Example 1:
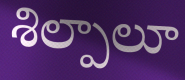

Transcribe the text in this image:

శిల్పాలూ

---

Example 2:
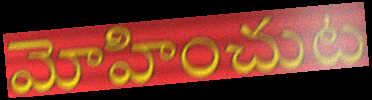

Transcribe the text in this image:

మోహించుట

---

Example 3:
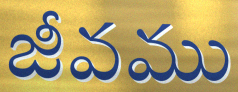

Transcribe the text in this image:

జీవము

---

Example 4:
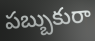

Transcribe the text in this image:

పబ్బుకురా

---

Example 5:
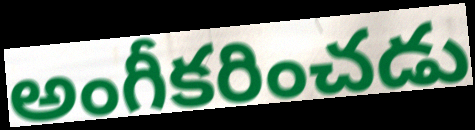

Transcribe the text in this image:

అంగీకరించడు